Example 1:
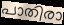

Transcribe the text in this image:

പാതിരാ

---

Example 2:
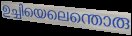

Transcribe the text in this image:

ഉച്ചിയെലെന്തൊരു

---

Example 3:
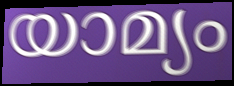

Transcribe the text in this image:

യാമ്യം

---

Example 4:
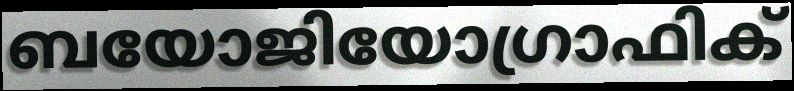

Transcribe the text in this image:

ബയോജിയോഗ്രാഫിക്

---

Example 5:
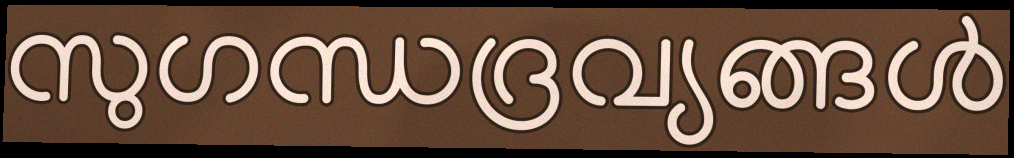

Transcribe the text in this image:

സുഗന്ധദ്രവ്യങ്ങൾ